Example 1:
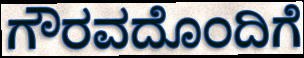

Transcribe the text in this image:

ಗೌರವದೊಂದಿಗೆ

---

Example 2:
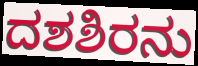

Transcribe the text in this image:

ದಶಶಿರನು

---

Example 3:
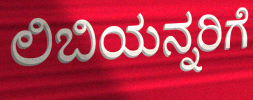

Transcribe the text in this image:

ಲಿಬಿಯನ್ನರಿಗೆ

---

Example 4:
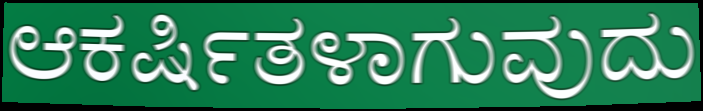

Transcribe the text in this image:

ಆಕರ್ಷಿತಳಾಗುವುದು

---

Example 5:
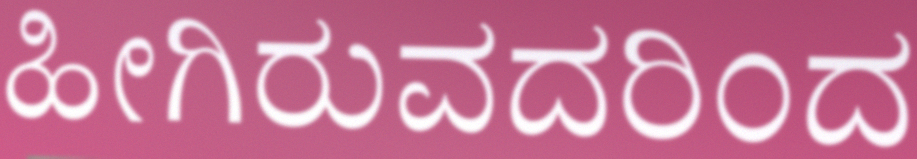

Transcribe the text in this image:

ಹೀಗಿರುವದರಿಂದ